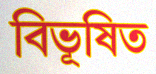
বিভূষিত